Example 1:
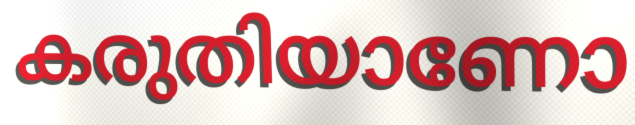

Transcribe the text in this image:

കരുതിയാണോ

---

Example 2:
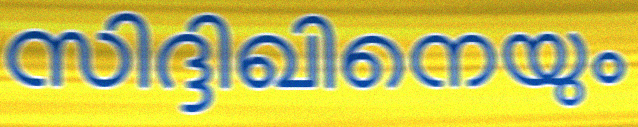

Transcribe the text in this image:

സിദ്ദിഖിനെയും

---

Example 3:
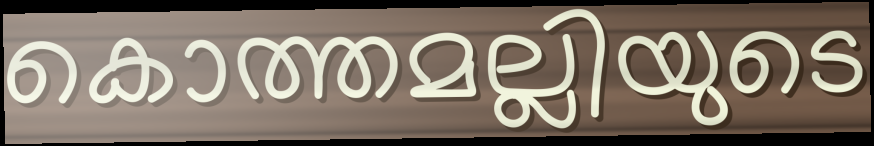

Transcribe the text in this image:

കൊത്തമല്ലിയുടെ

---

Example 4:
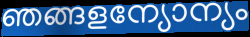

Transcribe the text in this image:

ഞങ്ങളന്യോന്യം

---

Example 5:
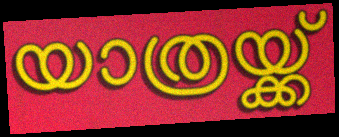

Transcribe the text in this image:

യാത്രയ്ക്ക്